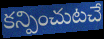
కన్పించుటచే